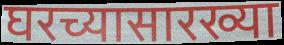
घरच्यासारख्या